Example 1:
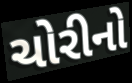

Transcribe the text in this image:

ચોરીનો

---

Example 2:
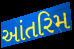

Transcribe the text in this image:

આંતરિમ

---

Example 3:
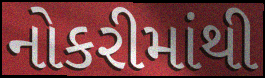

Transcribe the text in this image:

નોકરીમાંથી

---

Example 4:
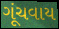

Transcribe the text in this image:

ગૂંચવાય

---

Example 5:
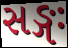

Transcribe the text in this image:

સઙ્ગઃ